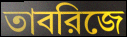
তাবরিজে